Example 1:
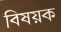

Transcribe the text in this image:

বিষয়ক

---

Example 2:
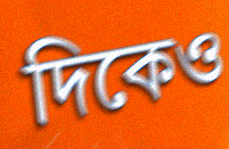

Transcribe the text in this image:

দিকেও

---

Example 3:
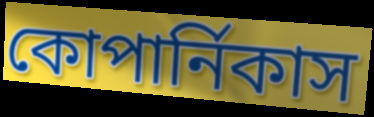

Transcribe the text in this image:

কোপার্নিকাস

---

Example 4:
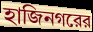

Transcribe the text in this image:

হাজিনগরের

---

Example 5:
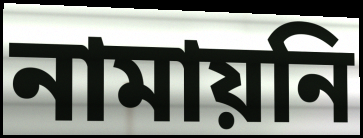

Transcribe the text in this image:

নামায়নি